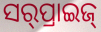
ସର୍‌ପ୍ରାଇଜ୍